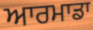
ਆਰਮਾਡਾ